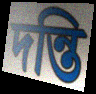
দন্তি